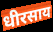
धीरसाय